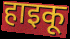
हाइकू